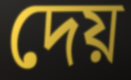
দেয়